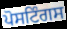
ਪੋਸਟਿੰਗਸ